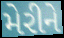
મેરીને